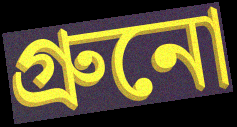
গ্রুনো